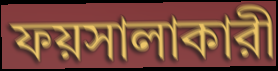
ফয়সালাকারী